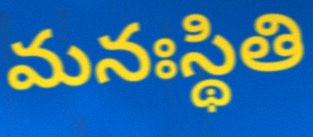
మనఃస్థితి